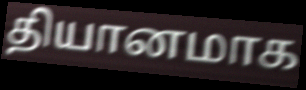
தியானமாக